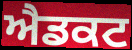
ਐਡਕਟ